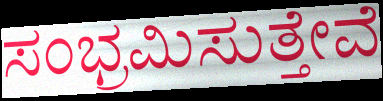
ಸಂಭ್ರಮಿಸುತ್ತೇವೆ